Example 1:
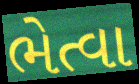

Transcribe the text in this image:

ભેત્વા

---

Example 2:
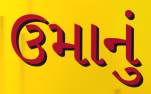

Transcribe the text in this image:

ઉમાનું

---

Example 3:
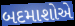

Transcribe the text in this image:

બદમાશોએ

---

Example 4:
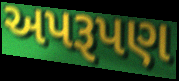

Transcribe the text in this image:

અપરૂપણ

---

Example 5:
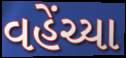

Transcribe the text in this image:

વહેંચ્યા